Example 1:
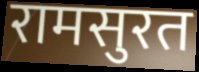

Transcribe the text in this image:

रामसुरत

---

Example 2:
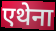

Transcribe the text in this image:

एथेना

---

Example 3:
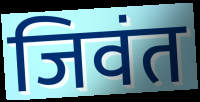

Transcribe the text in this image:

जिवंत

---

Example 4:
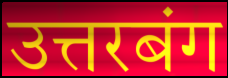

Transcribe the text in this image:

उत्तरबंग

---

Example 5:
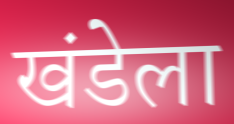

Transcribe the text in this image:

खंडेला